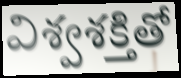
విశ్వశక్తితో